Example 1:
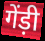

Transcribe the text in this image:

गेंड़ी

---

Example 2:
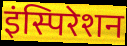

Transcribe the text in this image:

इंस्पिरेशन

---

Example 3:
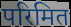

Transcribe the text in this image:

परिमित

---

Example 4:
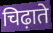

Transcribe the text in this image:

चिढ़ाते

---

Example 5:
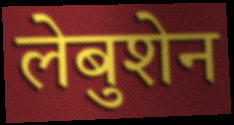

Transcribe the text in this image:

लेबुशेन